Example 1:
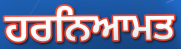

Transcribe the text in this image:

ਹਰਨਿਆਮਤ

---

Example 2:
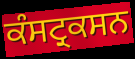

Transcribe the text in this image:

ਕੰਸਟ੍ਰਕਸਨ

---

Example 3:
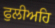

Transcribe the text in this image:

ਫੁਲੀਅਹਿ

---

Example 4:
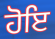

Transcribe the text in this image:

ਹੋਇ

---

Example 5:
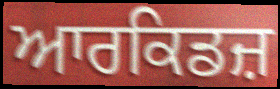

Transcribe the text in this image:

ਆਰਕਿਡਜ਼